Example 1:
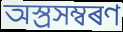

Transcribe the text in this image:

অস্ত্ৰসম্বৰণ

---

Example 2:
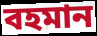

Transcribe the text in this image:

বহমান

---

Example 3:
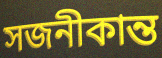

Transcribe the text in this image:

সজনীকান্ত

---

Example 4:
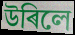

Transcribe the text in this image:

উৰিলে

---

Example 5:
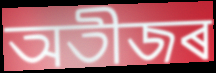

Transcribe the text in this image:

অতীজৰ